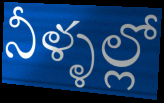
నీళ్ళల్లో